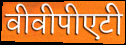
वीवीपीएटी